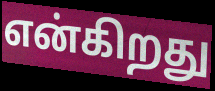
என்கிறது